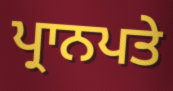
ਪ੍ਰਾਨਪਤੇ